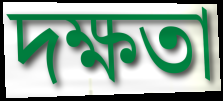
দক্ষতা